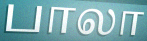
பாலா